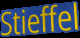
Stieffel